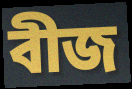
বীজ